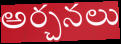
అర్చనలు